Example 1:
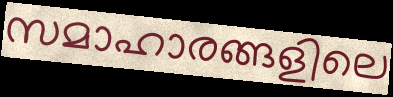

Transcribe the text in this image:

സമാഹാരങ്ങളിലെ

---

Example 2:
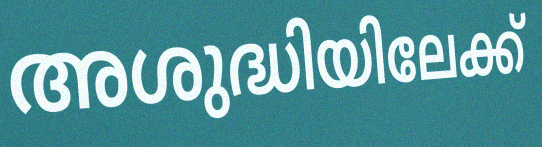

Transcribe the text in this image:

അശുദ്ധിയിലേക്ക്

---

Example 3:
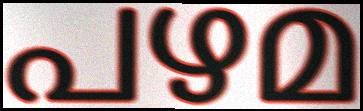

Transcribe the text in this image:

പഴമ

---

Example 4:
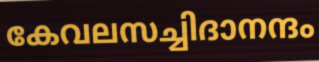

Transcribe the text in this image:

കേവലസച്ചിദാനന്ദം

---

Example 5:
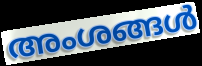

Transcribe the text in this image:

അംശങ്ങൾ